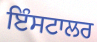
ਇੰਸਟਾਲਰ